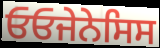
ਓਓਜੇਨੇਸਿਸ